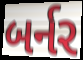
બર્નર